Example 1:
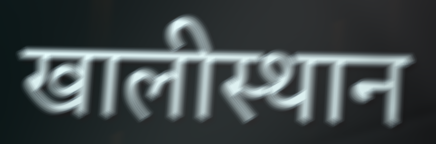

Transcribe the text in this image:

खालीस्थान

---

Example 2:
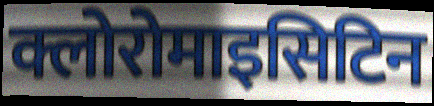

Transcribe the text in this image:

क्लोरोमाइसिटिन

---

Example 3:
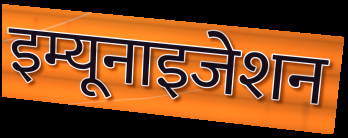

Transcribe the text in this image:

इम्यूनाइजेशन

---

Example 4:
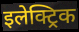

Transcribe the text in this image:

इलेक्ट्रिक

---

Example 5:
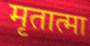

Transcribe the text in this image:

मृतात्मा